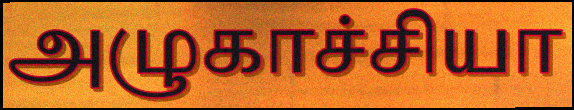
அழுகாச்சியா